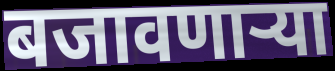
बजावणाऱ्या